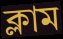
ক্লাম